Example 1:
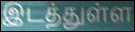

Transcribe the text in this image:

இடத்துள்ள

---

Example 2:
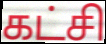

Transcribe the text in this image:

கட்சி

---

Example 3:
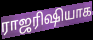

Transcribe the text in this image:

ராஜரிஷியாக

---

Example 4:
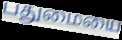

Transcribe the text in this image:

பதுமையை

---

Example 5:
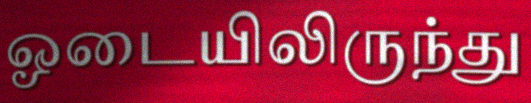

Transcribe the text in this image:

ஓடையிலிருந்து